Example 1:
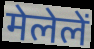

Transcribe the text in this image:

मेलेलें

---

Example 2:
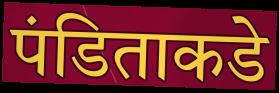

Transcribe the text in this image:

पंडिताकडे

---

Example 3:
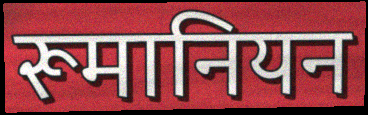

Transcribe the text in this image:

रूमानियन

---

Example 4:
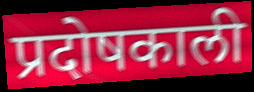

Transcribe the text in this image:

प्रदोषकाली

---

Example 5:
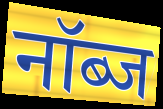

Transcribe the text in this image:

नॉब्ज